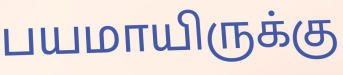
பயமாயிருக்கு